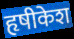
हृषीकेश